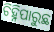
ଚିହ୍ନିପାରୁଛ